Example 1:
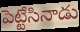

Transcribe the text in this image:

పెట్టేసినాడు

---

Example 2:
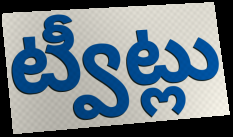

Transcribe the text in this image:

ట్వీట్లు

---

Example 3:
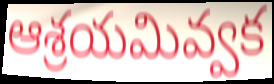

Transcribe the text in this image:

ఆశ్రయమివ్వక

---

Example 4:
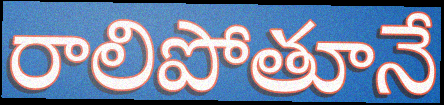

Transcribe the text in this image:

రాలిపోతూనే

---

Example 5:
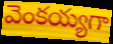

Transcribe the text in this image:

వెంకయ్యగా